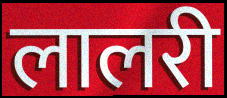
लालरी